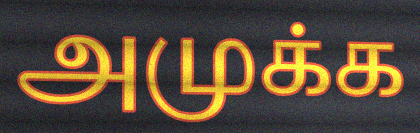
அமுக்க